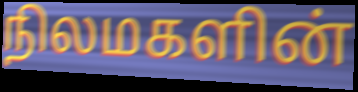
நிலமகளின்